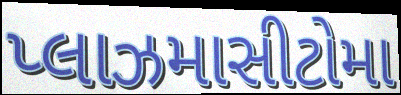
પ્લાઝમાસીટોમા